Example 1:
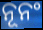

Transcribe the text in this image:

ନୂନଂ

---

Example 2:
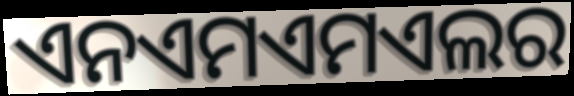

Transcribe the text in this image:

ଏନଏମଏମଏଲର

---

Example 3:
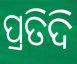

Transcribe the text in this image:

ପ୍ରତିଦି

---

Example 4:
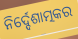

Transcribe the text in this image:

ନିର୍ଦ୍ଦେଶାତ୍ମକର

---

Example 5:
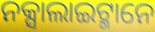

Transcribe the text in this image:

ନକ୍ସାଲାଇଟ୍ମାନେ